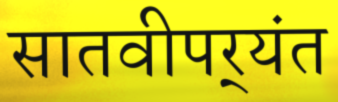
सातवीपर्यंत